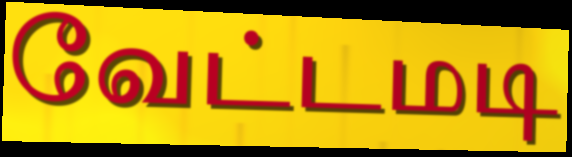
வேட்டமடி